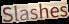
Slashes